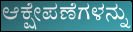
ಆಕ್ಷೇಪಣೆಗಳನ್ನು